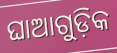
ଘାଆଗୁଡ଼ିକ